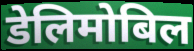
डेलिमोबिल